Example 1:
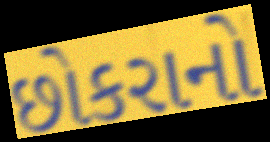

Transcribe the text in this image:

છોકરાનો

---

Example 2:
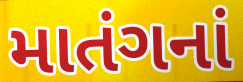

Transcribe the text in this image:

માતંગનાં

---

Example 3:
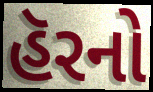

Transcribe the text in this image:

હૅરનો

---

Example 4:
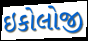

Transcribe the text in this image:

ઇકોલોજી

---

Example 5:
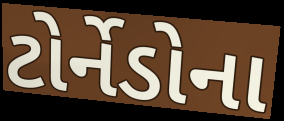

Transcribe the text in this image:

ટોર્નેડોના